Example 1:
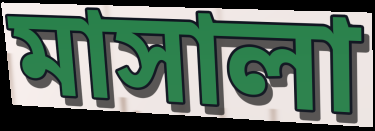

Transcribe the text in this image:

মাসালা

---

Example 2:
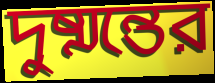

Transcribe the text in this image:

দুষ্মন্তের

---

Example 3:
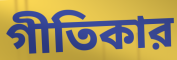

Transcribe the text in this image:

গীতিকার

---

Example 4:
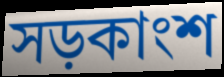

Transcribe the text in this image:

সড়কাংশ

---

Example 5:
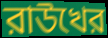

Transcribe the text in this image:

রাউখের